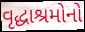
વૃદ્ધાશ્રમોનો